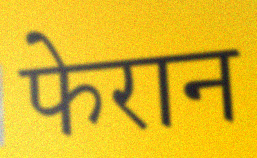
फेरान